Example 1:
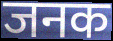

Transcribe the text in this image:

जनक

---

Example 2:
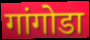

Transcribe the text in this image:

गांगोडा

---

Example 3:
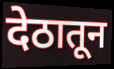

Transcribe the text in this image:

देठातून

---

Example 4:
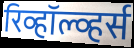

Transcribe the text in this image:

रिव्हॉल्व्हर्स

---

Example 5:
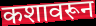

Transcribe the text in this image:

कशावरून